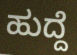
ಹುದ್ದೆ